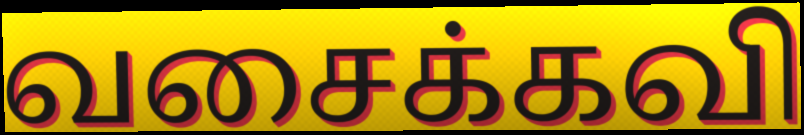
வசைக்கவி